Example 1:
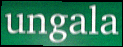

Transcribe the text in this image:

ungala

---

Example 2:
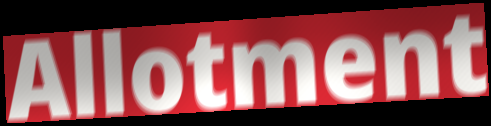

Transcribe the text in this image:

Allotment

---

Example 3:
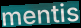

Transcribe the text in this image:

mentis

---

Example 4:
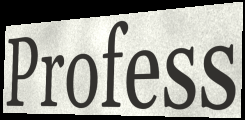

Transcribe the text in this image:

Profess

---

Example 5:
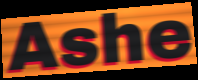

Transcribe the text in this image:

Ashe